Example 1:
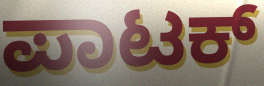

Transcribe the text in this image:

ಪಾಟಕ್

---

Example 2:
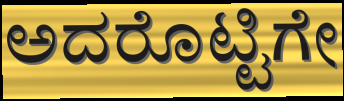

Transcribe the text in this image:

ಅದರೊಟ್ಟಿಗೇ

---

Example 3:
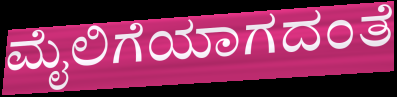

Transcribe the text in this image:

ಮೈಲಿಗೆಯಾಗದಂತೆ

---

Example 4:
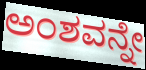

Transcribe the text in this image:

ಅಂಶವನ್ನೇ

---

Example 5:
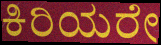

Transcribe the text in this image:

ಕಿರಿಯರೇ